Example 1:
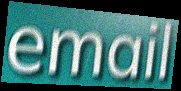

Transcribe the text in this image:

email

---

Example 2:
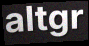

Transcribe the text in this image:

altgr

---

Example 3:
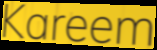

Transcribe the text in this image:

Kareem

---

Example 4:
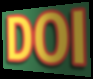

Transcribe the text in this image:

DOI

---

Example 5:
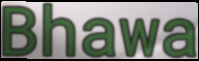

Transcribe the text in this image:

Bhawa